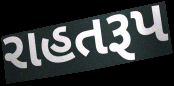
રાહતરૂપ